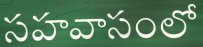
సహవాసంలో